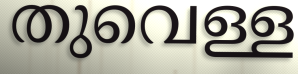
തുവെള്ള